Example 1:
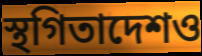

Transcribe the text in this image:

স্থগিতাদেশও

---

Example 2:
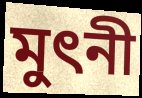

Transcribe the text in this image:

মুৎনী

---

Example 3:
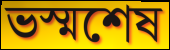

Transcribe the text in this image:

ভস্মশেষ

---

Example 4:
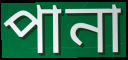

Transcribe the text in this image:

পানা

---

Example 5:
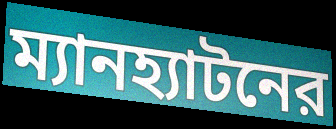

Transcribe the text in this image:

ম্যানহ্যাটনের